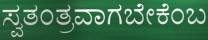
ಸ್ವತಂತ್ರವಾಗಬೇಕೆಂಬ